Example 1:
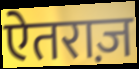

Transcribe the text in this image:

ऐतराज़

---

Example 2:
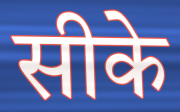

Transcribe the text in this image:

सीके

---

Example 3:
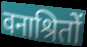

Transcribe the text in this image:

वनाश्रितों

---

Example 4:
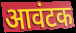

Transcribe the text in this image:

आवंटक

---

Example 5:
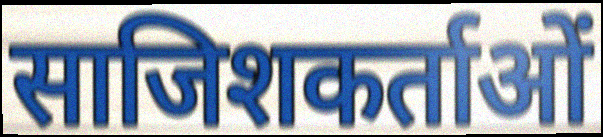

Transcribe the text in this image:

साजिशकर्ताओं